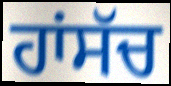
ਹਾਂਸੱਚ